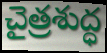
చైత్రశుద్ధ